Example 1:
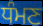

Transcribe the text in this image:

ਧੰਮਣ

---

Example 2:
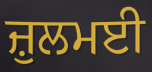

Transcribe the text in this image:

ਜ਼ੁਲਮਈ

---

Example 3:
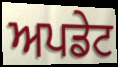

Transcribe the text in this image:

ਅਪਡੇਟ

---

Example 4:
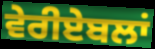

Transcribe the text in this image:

ਵੇਰੀਏਬਲਾਂ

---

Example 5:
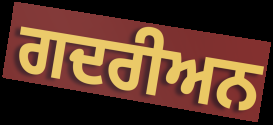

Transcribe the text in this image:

ਗਦਰੀਅਨ